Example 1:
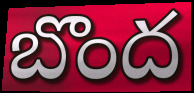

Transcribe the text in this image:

బొంద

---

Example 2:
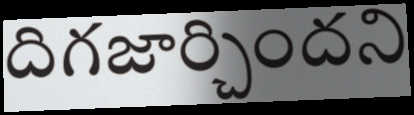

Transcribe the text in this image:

దిగజార్చిందని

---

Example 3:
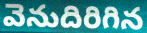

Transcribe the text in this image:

వెనుదిరిగిన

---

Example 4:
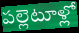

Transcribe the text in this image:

పల్లెటూళ్లో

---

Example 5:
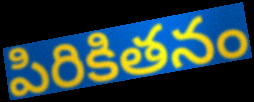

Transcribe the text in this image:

పిరికితనం